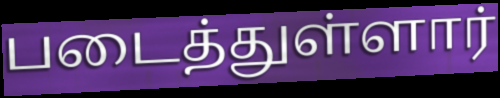
படைத்துள்ளார்